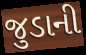
જુડાની